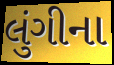
લુંગીના